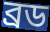
ব্রড